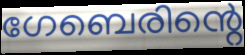
ഗേബെരിന്റെ